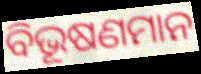
ବିଭୂଷଣମାନ